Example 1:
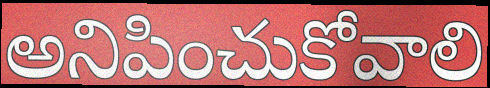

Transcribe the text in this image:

అనిపించుకోవాలి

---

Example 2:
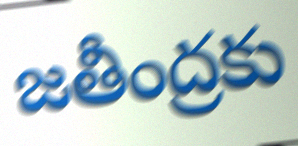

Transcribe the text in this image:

జతీంద్రకు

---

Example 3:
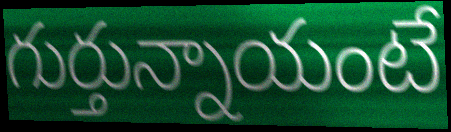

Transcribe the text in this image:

గుర్తున్నాయంటే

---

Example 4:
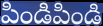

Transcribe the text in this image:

పిండిపిండి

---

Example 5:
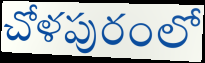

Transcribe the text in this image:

చోళపురంలో